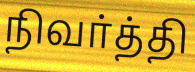
நிவர்த்தி